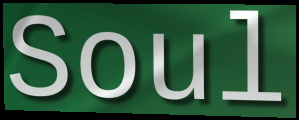
Soul